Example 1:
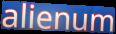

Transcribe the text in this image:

alienum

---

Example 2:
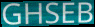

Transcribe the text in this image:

GHSEB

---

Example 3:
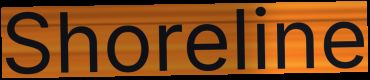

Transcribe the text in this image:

Shoreline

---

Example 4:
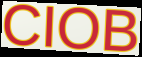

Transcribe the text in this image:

CIOB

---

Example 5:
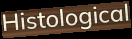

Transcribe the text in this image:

Histological